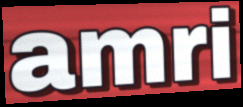
amri